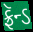
ફ્રૅન્ડ